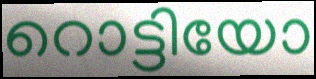
റൊട്ടിയോ